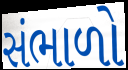
સંભાળો